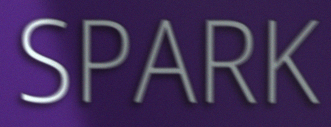
SPARK